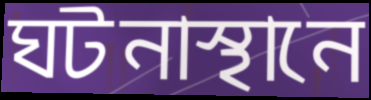
ঘটনাস্থানে